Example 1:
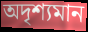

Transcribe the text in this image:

অদৃশ্যমান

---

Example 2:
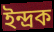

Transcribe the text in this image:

ইন্দ্ৰক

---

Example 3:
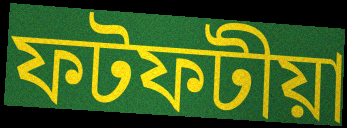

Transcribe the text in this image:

ফটফটীয়া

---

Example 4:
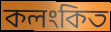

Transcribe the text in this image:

কলংকিত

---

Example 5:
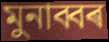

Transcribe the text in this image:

মুনাব্বৰ